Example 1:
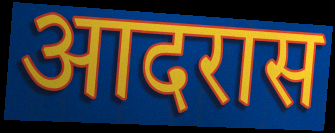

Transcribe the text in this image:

आदरास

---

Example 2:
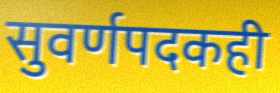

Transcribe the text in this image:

सुवर्णपदकही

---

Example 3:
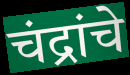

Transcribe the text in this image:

चंद्रांचे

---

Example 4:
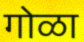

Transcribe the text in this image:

गोळा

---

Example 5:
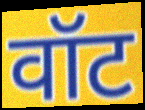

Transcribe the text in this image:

वॉट